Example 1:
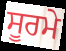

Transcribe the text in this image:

ਸੂਰਮੇ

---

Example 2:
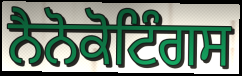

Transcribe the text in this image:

ਨੈਨੋਕੋਟਿੰਗਸ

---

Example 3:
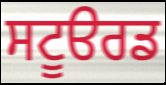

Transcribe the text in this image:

ਸਟੂੳਰਡ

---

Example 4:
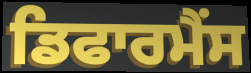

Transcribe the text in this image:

ਡਿਫਾਰਮੈਂਸ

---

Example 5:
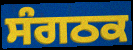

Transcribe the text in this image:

ਸੰਗਠਕ